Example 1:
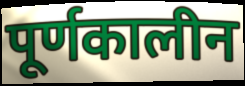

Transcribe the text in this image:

पूर्णकालीन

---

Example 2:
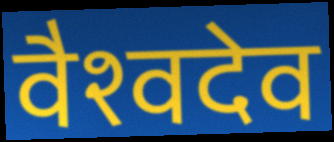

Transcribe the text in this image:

वैश्वदेव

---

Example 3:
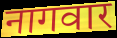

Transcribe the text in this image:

नागवार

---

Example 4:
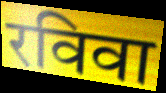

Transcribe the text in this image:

रविवा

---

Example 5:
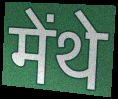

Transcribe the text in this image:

मेंथे